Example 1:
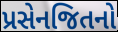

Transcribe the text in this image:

પ્રસેનજિતનો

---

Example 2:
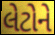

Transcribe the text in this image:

લેટોને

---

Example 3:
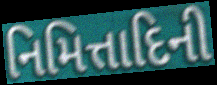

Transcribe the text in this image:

નિમિત્તાદિની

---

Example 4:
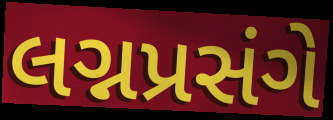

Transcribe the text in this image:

લગ્નપ્રસંગે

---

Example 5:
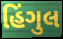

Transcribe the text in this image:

હિંગુલ